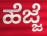
ಹೆಜ್ಜೆ